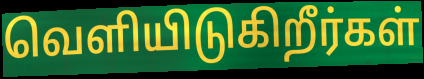
வெளியிடுகிறீர்கள்